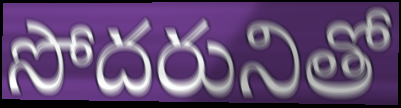
సోదరునితో